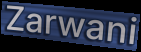
Zarwani